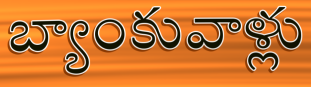
బ్యాంకువాళ్లు